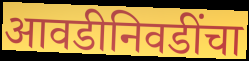
आवडीनिवडींचा